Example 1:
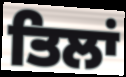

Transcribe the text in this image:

ਤਿਲਾਂ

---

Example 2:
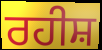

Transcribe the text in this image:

ਰਹੀਸ਼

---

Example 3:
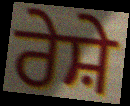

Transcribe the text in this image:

ਰੇਸ਼ੇ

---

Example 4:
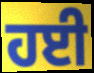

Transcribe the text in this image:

ਹਈ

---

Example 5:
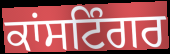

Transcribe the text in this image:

ਕਾਂਸਟਿੰਗਰ